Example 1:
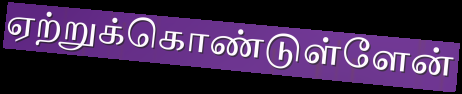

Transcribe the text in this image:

ஏற்றுக்கொண்டுள்ளேன்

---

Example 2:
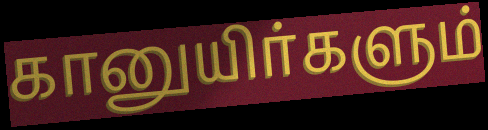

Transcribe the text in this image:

கானுயிர்களும்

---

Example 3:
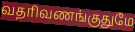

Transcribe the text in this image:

வதரிவணங்குதுமே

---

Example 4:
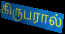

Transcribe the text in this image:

கிருபரால்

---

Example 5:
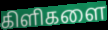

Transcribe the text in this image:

கிளிகளை